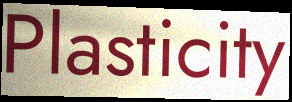
Plasticity